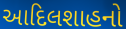
આદિલશાહનો